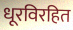
धूरविरहित